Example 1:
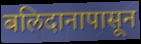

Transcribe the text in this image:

बलिदानापासून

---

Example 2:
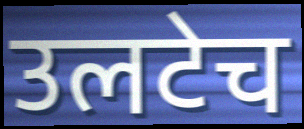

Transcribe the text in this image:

उलटेच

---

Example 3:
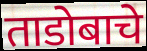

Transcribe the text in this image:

ताडोबाचे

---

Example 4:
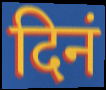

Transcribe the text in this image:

दिनं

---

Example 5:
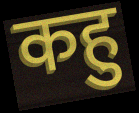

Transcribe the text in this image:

कहु